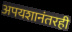
अपयशानंतरही